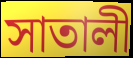
সাতালী